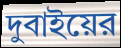
দুবাইয়ের